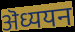
ऄध्ययन